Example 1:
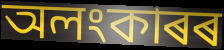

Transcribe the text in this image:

অলংকাৰৰ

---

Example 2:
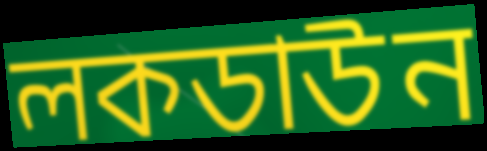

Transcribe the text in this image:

লকডাউন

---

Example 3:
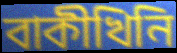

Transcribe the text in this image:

বাকীখিনি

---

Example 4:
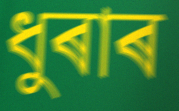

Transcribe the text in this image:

ধুৰাৰ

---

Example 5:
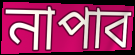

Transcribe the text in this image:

নাপাব